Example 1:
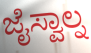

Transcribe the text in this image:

ಜೈಸ್ವಾಲ್ನ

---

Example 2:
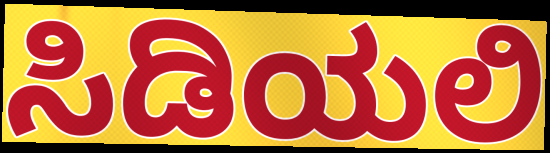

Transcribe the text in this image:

ಸಿಡಿಯಲಿ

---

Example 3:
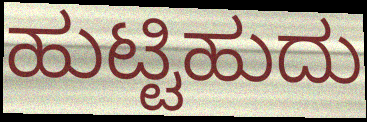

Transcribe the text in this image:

ಹುಟ್ಟಿಹುದು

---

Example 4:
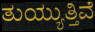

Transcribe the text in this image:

ತುಯ್ಯುತ್ತಿವೆ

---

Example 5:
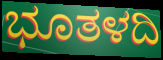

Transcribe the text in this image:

ಭೂತಳದಿ